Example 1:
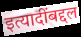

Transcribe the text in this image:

इत्यादींबद्दल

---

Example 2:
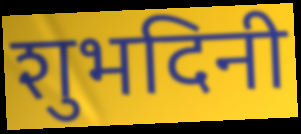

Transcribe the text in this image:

शुभदिनी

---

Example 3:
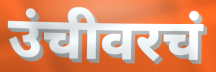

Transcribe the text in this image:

उंचीवरचं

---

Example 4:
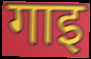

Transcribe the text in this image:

गाइ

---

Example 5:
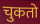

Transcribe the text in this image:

चुकतो